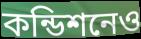
কন্ডিশনেও